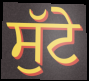
ਸੁੱਟੇ